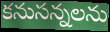
కనుసన్నలను